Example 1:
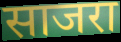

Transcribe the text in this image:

साजरा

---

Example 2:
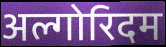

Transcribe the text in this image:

अल्गोरिदम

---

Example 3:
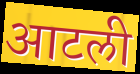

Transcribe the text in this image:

आटली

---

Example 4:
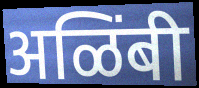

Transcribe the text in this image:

अळिंबी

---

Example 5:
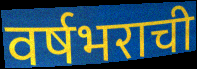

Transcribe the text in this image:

वर्षभराची